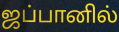
ஜப்பானில்